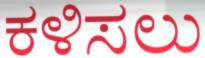
ಕಳಿಸಲು